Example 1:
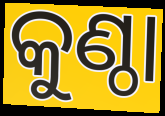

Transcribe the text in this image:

କୁଣ୍ଠା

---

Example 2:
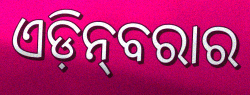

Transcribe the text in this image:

ଏଡ଼ିନ୍‍ବରାର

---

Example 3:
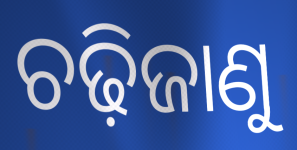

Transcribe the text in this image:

ଚଢ଼ିଜାଣୁ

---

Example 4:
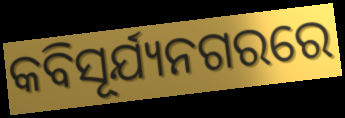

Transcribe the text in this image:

କବିସୂର୍ଯ୍ୟନଗରରେ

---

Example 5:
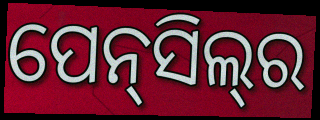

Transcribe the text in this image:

ପେନ୍‌ସିଲ୍‌ର